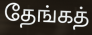
தேங்கத்